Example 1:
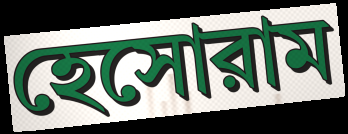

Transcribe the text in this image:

হেসোরাম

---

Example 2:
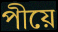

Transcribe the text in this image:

পীয়ে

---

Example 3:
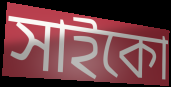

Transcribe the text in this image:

সাইকো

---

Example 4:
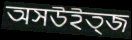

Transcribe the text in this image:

অসউইত্জ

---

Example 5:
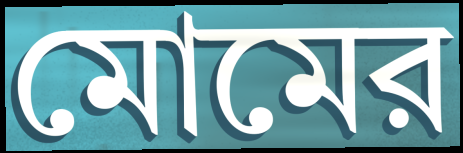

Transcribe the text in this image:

মোমের